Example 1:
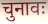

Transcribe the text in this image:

चुनावः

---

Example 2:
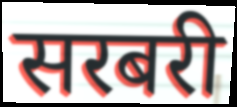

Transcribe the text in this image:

सरबरी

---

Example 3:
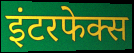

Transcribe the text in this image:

इंटरफेक्स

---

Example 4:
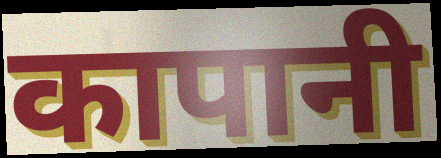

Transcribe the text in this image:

कापानी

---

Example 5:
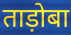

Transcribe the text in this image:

ताड़ोबा